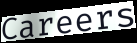
Careers